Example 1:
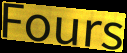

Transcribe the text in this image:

Fours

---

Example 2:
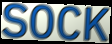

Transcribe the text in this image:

SOCK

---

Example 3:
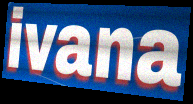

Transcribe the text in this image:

ivana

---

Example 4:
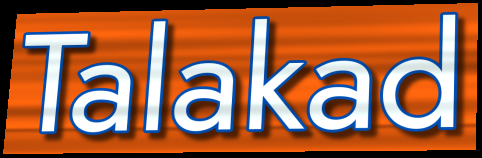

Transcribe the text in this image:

Talakad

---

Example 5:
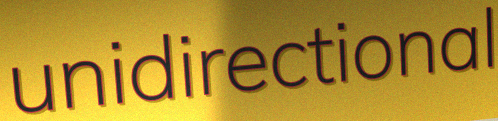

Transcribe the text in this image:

unidirectional